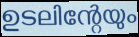
ഉടലിന്റേയും